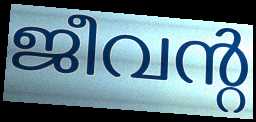
ജീവന്റ